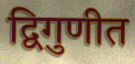
द्विगुणीत